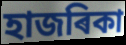
হাজৰিকা